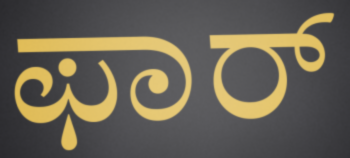
ಫಾರ್